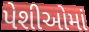
પેશીઓમાં